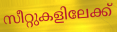
സീറ്റുകളിലേക്ക്